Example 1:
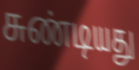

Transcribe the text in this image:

சுண்டியது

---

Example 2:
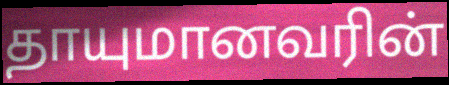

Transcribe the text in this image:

தாயுமானவரின்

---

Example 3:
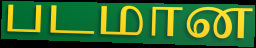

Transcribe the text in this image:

படமான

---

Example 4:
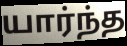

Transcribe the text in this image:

யார்ந்த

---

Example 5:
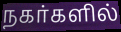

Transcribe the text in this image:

நகர்களில்